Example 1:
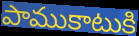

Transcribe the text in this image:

పాముకాటుకి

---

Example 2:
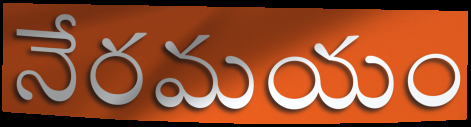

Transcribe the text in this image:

నేరమయం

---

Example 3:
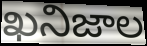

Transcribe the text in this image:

ఖనిజాల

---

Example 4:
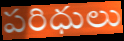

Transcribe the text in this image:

పరిధులు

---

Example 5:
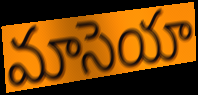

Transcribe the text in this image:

మాసెయా